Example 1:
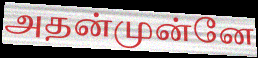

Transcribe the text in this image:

அதன்முன்னே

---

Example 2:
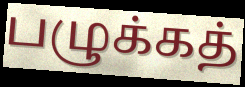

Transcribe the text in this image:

பழுக்கத்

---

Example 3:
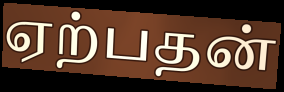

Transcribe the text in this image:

ஏற்பதன்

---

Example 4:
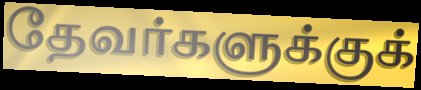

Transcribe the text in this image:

தேவர்களுக்குக்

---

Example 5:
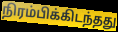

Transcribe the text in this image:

நிரம்பிக்கிடந்தது